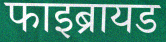
फाइब्रायड